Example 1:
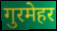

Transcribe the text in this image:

गुरमेहर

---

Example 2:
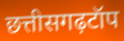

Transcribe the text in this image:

छत्तीसगढ़टॉप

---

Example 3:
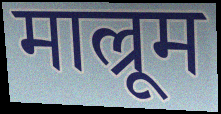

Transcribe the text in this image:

माल्रूम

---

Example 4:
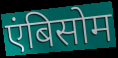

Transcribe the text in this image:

एंबिसोम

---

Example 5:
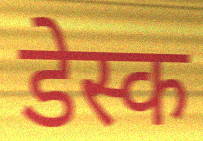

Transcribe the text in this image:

डेस्क